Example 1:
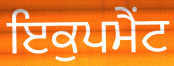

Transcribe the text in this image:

ਇਕੁਪਮੈਂਟ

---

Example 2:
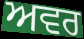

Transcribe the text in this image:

ਅਵਰ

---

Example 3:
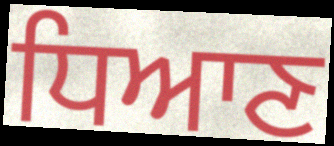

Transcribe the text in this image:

ਧਿਆਣ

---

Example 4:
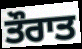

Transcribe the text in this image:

ਤੌਰਾਤ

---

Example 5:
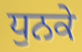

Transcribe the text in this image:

ਧੁਨਕੇ